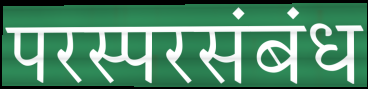
परस्परसंबंध